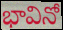
భావినో